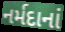
નર્મદાનાં